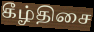
கீழ்திசை